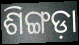
ଶିଙ୍ଗଡ଼ା